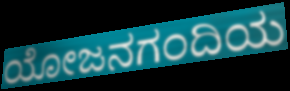
ಯೋಜನಗಂದಿಯ